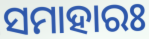
ସମାହାରଃ